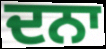
ਦਨਾ